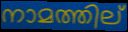
നാമത്തില്